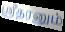
ஸ்ரீதரனும்